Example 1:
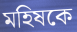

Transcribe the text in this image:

মহিষকে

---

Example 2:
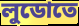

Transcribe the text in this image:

লুডোতে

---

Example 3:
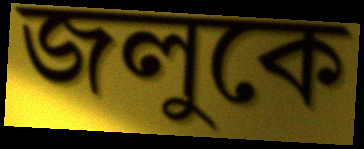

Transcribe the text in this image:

জলুকে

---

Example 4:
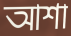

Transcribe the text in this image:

আশা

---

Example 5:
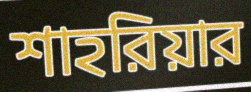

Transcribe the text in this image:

শাহরিয়ার